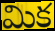
మిక